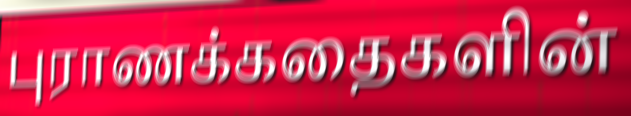
புராணக்கதைகளின்